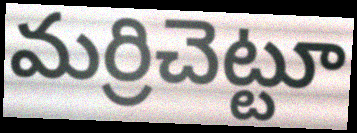
మర్రిచెట్టూ